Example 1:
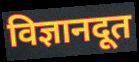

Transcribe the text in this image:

विज्ञानदूत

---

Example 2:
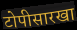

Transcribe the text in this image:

टोपीसारखा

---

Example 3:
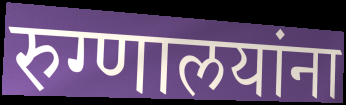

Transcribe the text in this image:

रुग्णालयांना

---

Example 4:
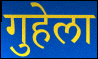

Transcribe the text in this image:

गुहेला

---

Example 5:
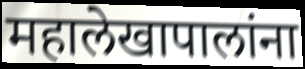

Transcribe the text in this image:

महालेखापालांना